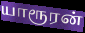
யாரூரன்